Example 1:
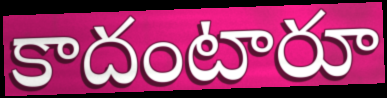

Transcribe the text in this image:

కాదంటారూ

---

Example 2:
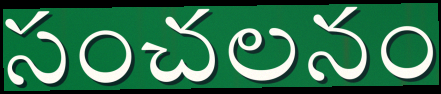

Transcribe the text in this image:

సంచలనం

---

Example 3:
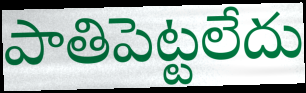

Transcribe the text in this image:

పాతిపెట్టలేదు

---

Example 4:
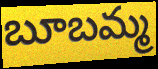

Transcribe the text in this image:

బూబమ్మ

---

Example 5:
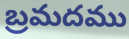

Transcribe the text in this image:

బ్రమదము